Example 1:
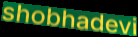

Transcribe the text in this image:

shobhadevi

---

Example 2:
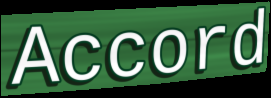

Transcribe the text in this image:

Accord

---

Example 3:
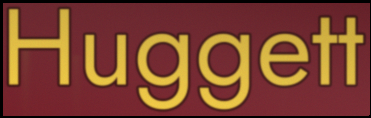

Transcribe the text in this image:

Huggett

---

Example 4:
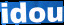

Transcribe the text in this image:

idou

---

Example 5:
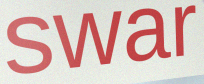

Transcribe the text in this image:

swar